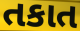
તકાત